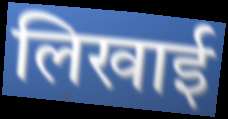
लिखाई